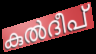
കുൽദീപ്